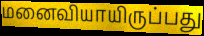
மனைவியாயிருப்பது